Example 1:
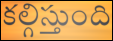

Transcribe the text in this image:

కల్గిస్తుంది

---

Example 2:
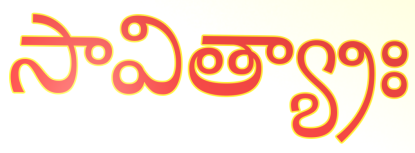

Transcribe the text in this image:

సావిత్య్రాః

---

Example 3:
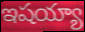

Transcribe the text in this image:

ఇషయ్యా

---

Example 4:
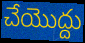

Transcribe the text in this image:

చేయొద్దు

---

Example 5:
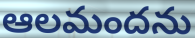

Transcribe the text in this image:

ఆలమందను